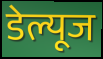
डेल्यूज